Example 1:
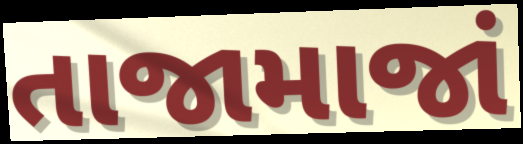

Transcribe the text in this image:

તાજામાજાં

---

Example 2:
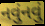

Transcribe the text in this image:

નવુંનવું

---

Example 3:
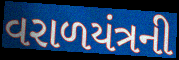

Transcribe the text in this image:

વરાળયંત્રની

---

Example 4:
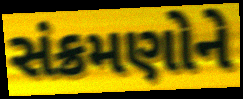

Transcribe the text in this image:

સંક્રમણોને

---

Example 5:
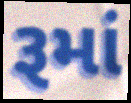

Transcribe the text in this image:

રૂમાં